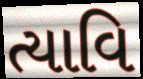
ત્યાવિ